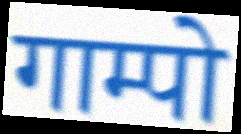
गाम्पो